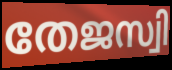
തേജസ്വി